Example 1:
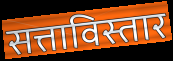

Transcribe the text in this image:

सत्ताविस्तार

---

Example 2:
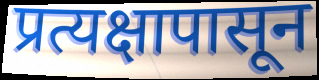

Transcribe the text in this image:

प्रत्यक्षापासून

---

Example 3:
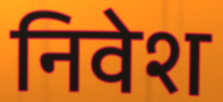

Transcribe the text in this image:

निवेश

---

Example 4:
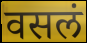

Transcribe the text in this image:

वसलं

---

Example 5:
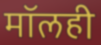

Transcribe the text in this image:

मॉलही